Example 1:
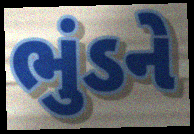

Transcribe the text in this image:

ભુંડને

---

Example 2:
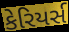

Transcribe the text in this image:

કેરિયર્સ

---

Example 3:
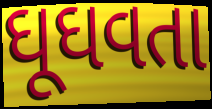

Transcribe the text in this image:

ઘૂઘવતા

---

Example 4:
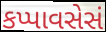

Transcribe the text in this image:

કપ્પાવસેસં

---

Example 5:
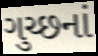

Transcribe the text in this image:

ગુચ્છનાં